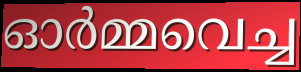
ഓർമ്മവെച്ച